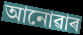
আনোৱাৰ